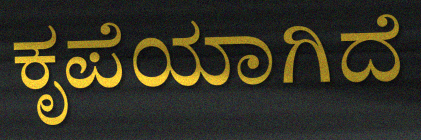
ಕೃಪೆಯಾಗಿದೆ